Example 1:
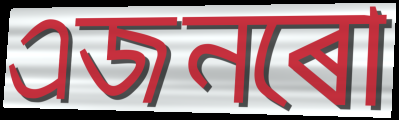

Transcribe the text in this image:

এজনৰো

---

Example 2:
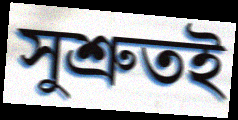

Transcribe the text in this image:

সুশ্ৰুতই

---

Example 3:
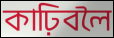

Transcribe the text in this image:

কাঢ়িবলৈ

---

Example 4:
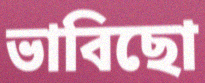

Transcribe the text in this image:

ভাবিছো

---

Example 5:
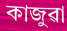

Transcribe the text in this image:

কাজুৱা